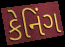
કેનિંગ